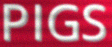
PIGS